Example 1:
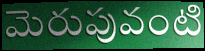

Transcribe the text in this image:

మెరుపువంటి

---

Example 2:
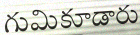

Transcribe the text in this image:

గుమికూడారు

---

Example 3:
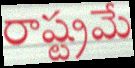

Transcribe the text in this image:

రాష్ట్రమే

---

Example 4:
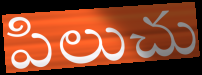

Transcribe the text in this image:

పిలుచు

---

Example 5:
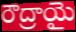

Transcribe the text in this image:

రౌద్రాయై